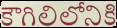
కౌగిలిలోనికి